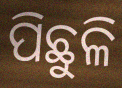
ପିଛୁଳି